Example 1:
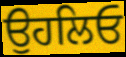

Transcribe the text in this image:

ਉਹਲਿਓ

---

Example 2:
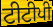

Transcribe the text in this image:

ਟੀਟੀਪੀ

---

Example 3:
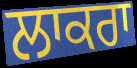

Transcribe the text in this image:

ਲਾਕਰਾ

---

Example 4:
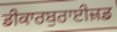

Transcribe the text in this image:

ਡੀਕਾਰਬੁਰਾਈਜ਼ਡ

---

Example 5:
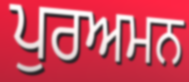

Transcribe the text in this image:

ਪੁਰਅਮਨ